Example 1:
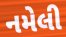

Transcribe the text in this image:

નમેલી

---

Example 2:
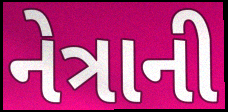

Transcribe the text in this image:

નેત્રાની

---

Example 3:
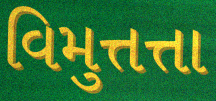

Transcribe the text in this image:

વિમુત્તત્તા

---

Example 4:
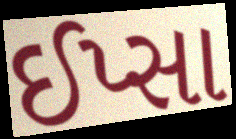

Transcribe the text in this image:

ઈપ્સા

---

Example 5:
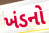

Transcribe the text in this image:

ખંડનો